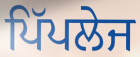
ਪਿੱਪਲੇਜ